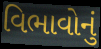
વિભાવોનું